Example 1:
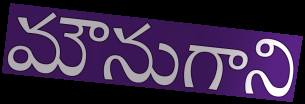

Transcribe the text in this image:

మౌనుగాని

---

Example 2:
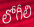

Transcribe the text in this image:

లోగీలి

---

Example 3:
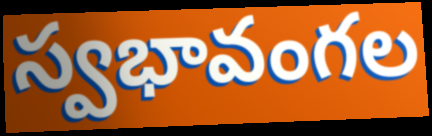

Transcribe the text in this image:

స్వభావంగల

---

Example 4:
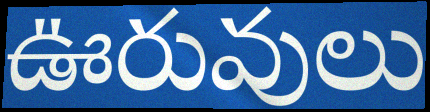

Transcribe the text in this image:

ఊరువులు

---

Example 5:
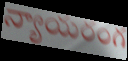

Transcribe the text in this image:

న్యాయరంగ